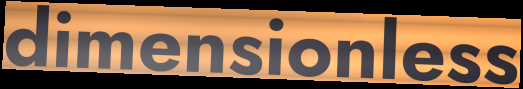
dimensionless